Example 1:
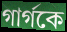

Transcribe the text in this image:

গার্গকে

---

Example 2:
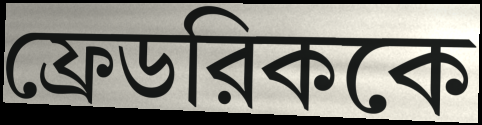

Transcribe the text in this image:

ফ্রেডরিককে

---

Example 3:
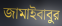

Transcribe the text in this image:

জামাইবাবুর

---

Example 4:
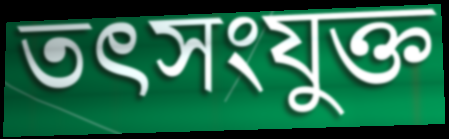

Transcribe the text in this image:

তৎসংযুক্ত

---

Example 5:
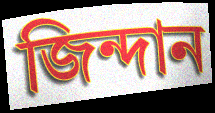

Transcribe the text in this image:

জিন্দান